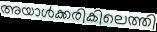
അയാൾക്കരികിലെത്തി